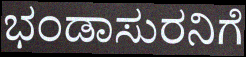
ಭಂಡಾಸುರನಿಗೆ